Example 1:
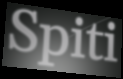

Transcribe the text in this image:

Spiti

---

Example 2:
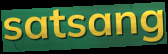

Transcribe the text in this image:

satsang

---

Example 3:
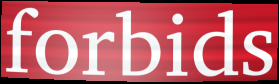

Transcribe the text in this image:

forbids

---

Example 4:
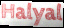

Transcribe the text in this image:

Halyal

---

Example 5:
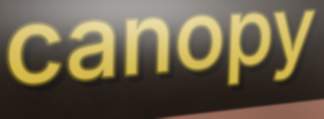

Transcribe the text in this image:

canopy